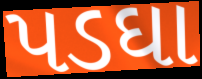
પડઘા